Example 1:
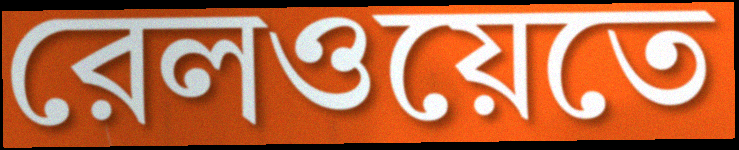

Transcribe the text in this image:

রেলওয়েতে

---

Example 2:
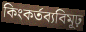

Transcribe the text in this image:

কিংকর্তব্যবিমূঢ়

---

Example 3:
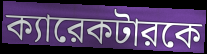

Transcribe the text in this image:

ক্যারেকটারকে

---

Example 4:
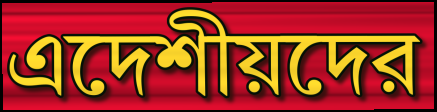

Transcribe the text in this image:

এদেশীয়দের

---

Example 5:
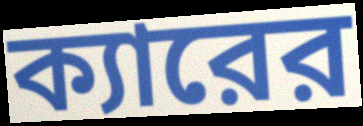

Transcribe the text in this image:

ক্যারের